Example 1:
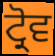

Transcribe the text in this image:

ਟ੍ਰੋਵ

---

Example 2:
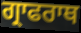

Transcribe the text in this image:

ਗ੍ਰਾਫਰਾਥ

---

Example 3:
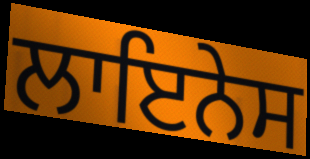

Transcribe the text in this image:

ਲਾਇਨੇਸ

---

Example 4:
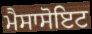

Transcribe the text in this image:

ਮੈਸਾਸੋਇਟ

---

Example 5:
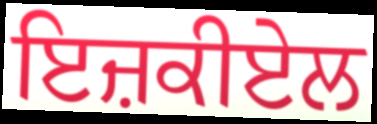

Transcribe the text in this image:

ਇਜ਼ਕੀਏਲ